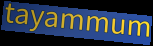
tayammum